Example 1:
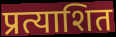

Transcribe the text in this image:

प्रत्याशित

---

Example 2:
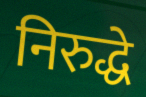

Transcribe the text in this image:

निरुद्धे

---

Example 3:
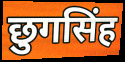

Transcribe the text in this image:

छुगसिंह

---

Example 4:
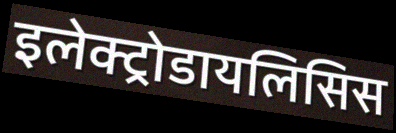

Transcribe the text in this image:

इलेक्ट्रोडायलिसिस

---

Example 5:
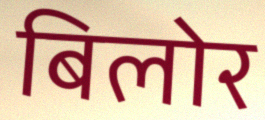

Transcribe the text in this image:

बिलोर